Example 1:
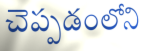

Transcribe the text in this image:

చెప్పడంలోని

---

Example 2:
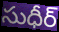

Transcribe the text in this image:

సుధీర్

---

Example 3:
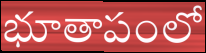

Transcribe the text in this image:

భూతాపంలో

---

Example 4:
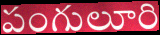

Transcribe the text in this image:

పంగులూరి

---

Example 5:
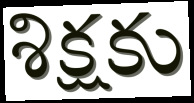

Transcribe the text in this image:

శిక్షకు